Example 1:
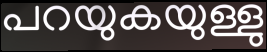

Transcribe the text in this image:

പറയുകയുള്ളു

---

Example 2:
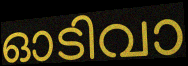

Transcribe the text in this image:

ഓടിവാ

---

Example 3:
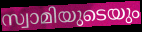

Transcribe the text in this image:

സ്വാമിയുടെയും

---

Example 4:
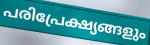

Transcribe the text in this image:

പരിപ്രേക്ഷ്യങ്ങളും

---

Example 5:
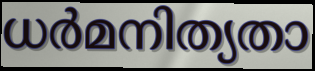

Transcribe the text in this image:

ധർമനിത്യതാ